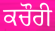
ਕਚੌਰੀ